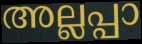
അല്ലപ്പാ